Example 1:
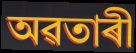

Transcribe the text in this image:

অৱতাৰী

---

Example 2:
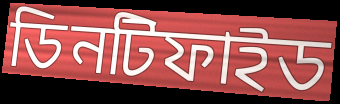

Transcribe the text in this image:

ডিনটিফাইড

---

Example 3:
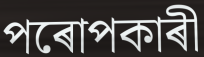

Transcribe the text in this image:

পৰোপকাৰী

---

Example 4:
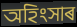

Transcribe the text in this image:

অহিংসাৰ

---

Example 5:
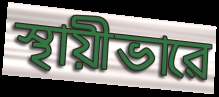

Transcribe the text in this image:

স্থায়ীভাৱে